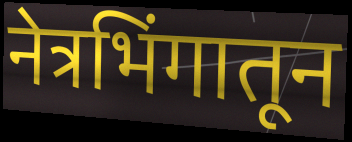
नेत्रभिंगातून